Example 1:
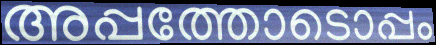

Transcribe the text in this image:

അപ്പത്തോടൊപ്പം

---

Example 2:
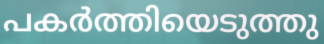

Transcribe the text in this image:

പകർത്തിയെടുത്തു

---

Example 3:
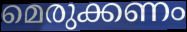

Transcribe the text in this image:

മെരുക്കണം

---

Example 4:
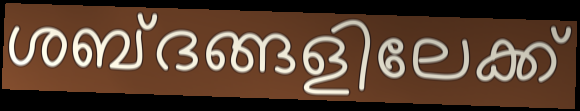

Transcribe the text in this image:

ശബ്ദങ്ങളിലേക്ക്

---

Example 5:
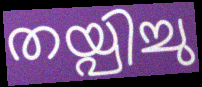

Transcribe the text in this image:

തയ്പിച്ചു